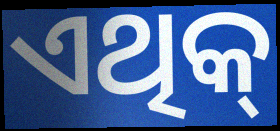
ଏଥିକ୍